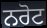
ਨਰੋਟ